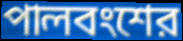
পালবংশের